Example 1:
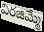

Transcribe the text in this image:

విరజిమ్మే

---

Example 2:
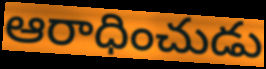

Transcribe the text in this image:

ఆరాధించుడు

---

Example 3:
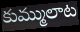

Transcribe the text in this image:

కుమ్ములాట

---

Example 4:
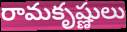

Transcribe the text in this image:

రామకృష్ణులు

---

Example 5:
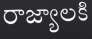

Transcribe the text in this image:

రాజ్యాలకి